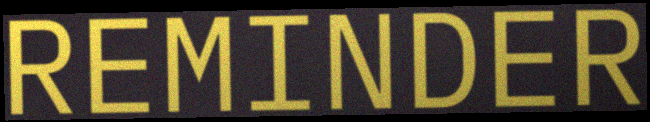
REMINDER